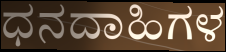
ಧನದಾಹಿಗಳ